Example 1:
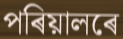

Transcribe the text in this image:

পৰিয়ালৰে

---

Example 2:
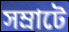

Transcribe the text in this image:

সম্ৰাটে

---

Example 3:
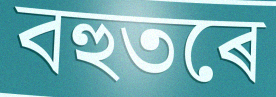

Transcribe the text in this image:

বহুতৰে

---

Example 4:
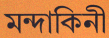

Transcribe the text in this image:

মন্দাকিনী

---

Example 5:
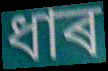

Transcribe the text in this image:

ধাৰ